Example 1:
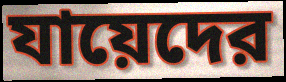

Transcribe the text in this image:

যায়েদের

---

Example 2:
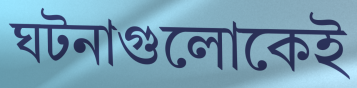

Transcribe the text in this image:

ঘটনাগুলোকেই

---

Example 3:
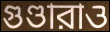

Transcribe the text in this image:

গুণ্ডারাও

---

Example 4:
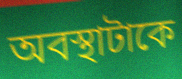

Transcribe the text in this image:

অবস্থাটাকে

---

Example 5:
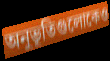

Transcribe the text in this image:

অনুভূতিগুলোকেও